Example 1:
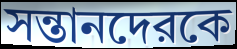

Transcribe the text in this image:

সন্তানদেরকে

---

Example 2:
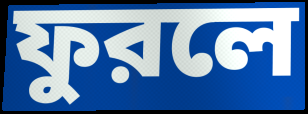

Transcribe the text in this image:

ফুরলে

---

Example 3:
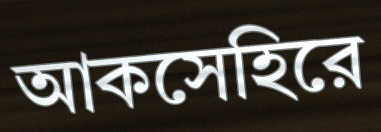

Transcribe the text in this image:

আকসেহিরে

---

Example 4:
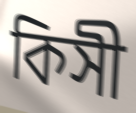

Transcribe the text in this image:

কিসী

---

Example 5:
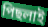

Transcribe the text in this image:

পিছলাই